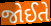
જોઈતે